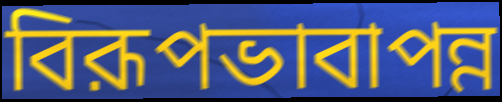
বিরূপভাবাপন্ন